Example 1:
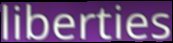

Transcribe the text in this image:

liberties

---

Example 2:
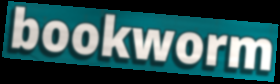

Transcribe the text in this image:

bookworm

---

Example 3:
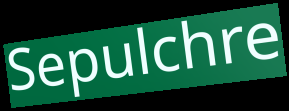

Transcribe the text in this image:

Sepulchre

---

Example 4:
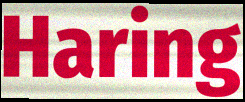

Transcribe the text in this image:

Haring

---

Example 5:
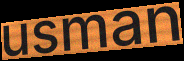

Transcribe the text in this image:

usman